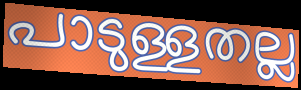
പാടുള്ളതല്ല